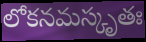
లోకనమస్కృతః